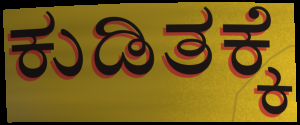
ಕುಡಿತಕ್ಕೆ